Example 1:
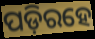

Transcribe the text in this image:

ପଡ଼ିରହେ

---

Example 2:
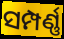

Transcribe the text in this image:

ସମ୍ପର୍ଣ୍ଣ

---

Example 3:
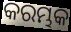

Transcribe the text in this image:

କରମ୍ଭକ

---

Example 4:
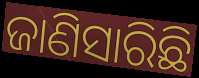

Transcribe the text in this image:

ଜାଣିସାରିଛି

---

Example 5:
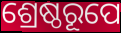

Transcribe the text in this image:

ଶ୍ରେଷ୍ଠରୂପେ